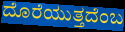
ದೊರೆಯುತ್ತದೆಂಬ